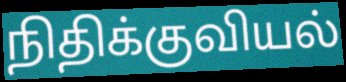
நிதிக்குவியல்